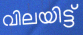
വിലയിട്ട്